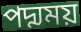
পদ্মময়